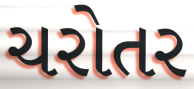
ચરોતર